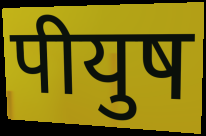
पीयुष